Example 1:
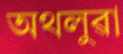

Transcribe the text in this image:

অথলুৱা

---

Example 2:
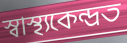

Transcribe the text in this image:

স্বাস্থ্যকেন্দ্ৰত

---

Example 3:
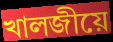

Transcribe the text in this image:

খালজীয়ে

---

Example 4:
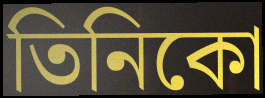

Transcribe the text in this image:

তিনিকো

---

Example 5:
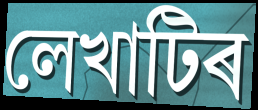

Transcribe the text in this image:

লেখাটিৰ